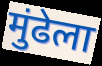
मुंढेला